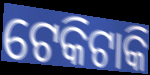
ଟେକିଟାକି